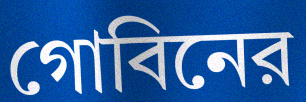
গোবিনের